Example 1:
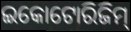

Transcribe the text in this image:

ଇକୋଟୋରିଜିମ୍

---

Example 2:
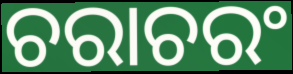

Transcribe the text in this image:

ଚରାଚରଂ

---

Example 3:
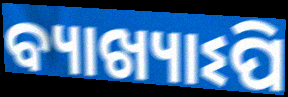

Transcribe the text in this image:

ବ୍ୟାଖ୍ୟାଽପି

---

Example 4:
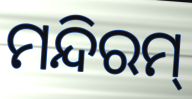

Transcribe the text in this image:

ମନ୍ଦିରମ୍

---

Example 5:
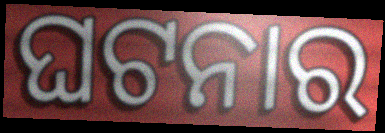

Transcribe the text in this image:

ଘଟନାର